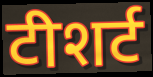
टीशर्ट